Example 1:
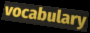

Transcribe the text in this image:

vocabulary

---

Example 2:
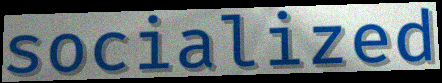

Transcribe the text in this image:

socialized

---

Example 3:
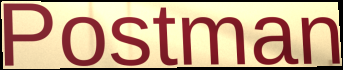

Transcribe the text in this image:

Postman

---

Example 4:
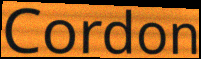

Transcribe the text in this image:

Cordon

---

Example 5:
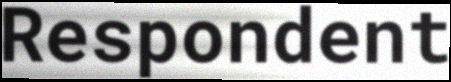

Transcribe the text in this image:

Respondent